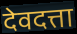
देवदत्ता